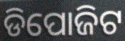
ଡିପୋଜିଟ